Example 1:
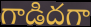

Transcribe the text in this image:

గాడిదగా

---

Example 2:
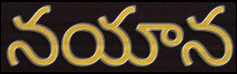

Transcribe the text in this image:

నయాన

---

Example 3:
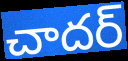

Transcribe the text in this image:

చాదర్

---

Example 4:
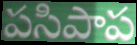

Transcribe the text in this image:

పసిపాప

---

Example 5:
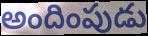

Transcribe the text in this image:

అందింపుడు